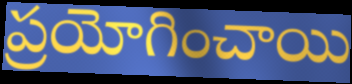
ప్రయోగించాయి